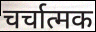
चर्चात्मक